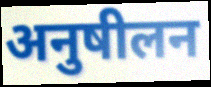
अनुषीलन